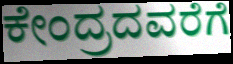
ಕೇಂದ್ರದವರೆಗೆ